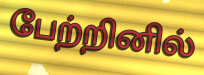
பேற்றினில்